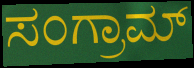
ಸಂಗ್ರಾಮ್